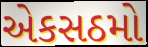
એકસઠમો